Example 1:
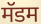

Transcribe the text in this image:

मॅडम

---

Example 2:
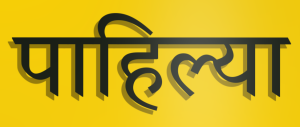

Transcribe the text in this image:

पाहिल्या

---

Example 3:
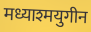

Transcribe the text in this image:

मध्याश्मयुगीन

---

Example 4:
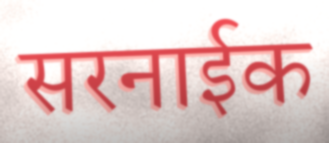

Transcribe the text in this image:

सरनाईक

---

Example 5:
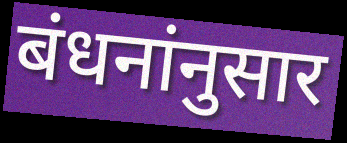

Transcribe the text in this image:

बंधनांनुसार